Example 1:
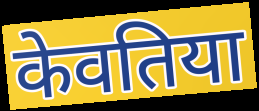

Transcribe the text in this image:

केवतिया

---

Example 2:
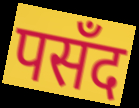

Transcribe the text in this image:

पसँद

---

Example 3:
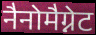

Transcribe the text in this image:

नैनोमैग्नेट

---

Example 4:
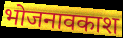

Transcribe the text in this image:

भोजनावकाश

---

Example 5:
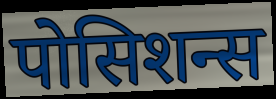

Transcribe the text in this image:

पोसिशन्स